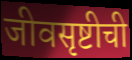
जीवसृष्टीची